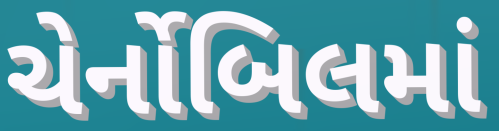
ચેર્નોબિલમાં